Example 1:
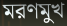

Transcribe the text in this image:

মরণমুখ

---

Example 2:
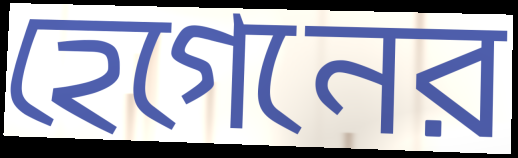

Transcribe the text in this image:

হেগেনের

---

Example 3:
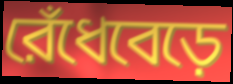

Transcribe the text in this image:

রেঁধেবেড়ে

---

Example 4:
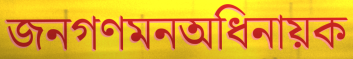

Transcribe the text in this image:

জনগণমনঅধিনায়ক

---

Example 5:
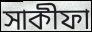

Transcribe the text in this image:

সাকীফা